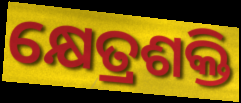
କ୍ଷେତ୍ରଶକ୍ତି